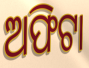
ଅଫିଟା